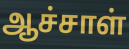
ஆச்சாள்